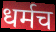
धर्मच